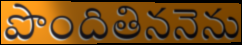
పొందితిననెను